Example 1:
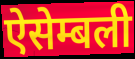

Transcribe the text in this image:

ऐसेम्बली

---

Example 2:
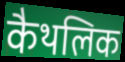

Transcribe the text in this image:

कैथलिक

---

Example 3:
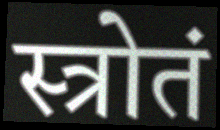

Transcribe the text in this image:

स्त्रोतं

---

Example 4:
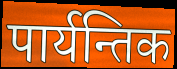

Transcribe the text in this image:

पार्यन्तिक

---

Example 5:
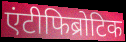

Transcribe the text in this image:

एंटीफिब्रोटिक